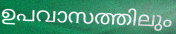
ഉപവാസത്തിലും